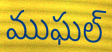
ముఘల్